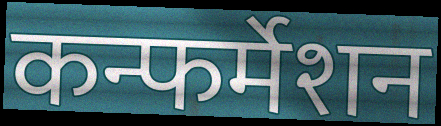
कन्‍फर्मेशन